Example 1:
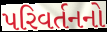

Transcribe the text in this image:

પરિવર્તનનો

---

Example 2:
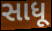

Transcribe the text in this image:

સાધૂ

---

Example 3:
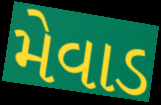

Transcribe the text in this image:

મેવાડ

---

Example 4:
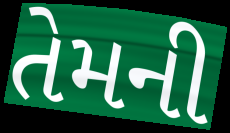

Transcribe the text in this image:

તેમની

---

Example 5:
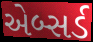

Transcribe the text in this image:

એબ્સર્ડ